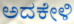
ಅದಕೇಳಿ